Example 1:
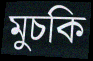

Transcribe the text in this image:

মুচকি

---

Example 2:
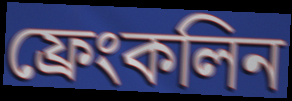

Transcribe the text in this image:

ফ্ৰেংকলিন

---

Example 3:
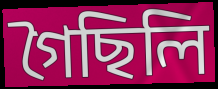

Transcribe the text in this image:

গৈছিলি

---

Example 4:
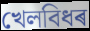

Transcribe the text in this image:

খেলবিধৰ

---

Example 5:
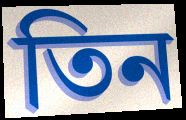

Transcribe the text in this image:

তিন